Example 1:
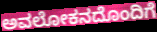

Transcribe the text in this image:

ಅವಲೋಕನದೊಂದಿಗೆ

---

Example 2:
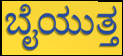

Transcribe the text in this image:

ಬೈಯುತ್ತ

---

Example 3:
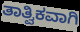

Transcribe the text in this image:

ತಾತ್ವಿಕವಾಗಿ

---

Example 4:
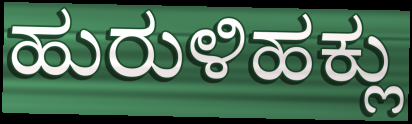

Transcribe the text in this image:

ಹುರುಳಿಹಕ್ಲು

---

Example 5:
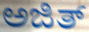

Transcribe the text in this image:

ಅಜಿತ್